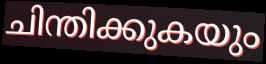
ചിന്തിക്കുകയും